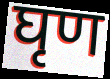
घृण